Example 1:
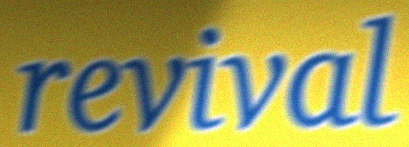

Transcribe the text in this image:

revival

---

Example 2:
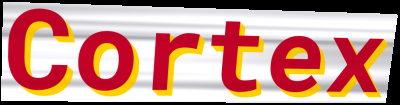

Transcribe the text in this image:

Cortex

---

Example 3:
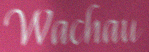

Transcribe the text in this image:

Wachau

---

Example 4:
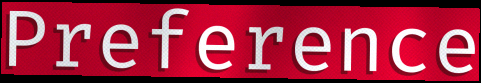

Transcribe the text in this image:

Preference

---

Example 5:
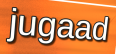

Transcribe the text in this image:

jugaad